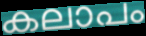
കലാപം